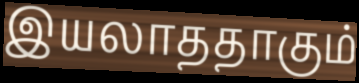
இயலாததாகும்